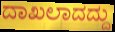
ದಾಖಲಾದದ್ದು